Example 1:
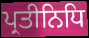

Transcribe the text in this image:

ਪ੍ਰਤੀਨਿਧਿ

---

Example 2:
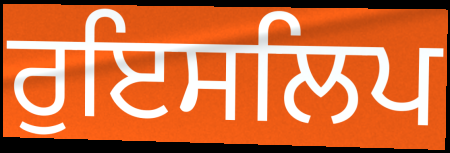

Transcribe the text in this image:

ਰੁਇਸਲਿਪ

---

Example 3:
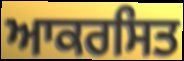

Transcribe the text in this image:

ਆਕਰਸਿਤ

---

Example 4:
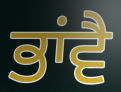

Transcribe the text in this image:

ਭਾਂਵੈ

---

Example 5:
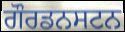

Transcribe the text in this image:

ਗੌਰਡਨਸਟਨ